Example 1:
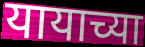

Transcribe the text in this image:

यायाच्या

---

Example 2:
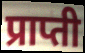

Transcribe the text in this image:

प्राप्ती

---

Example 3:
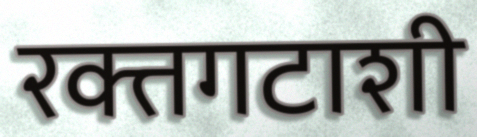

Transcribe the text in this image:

रक्तगटाशी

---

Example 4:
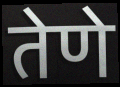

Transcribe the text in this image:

तेणे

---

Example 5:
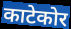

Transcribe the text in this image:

काटेकोर